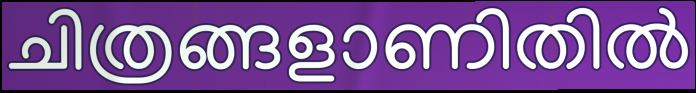
ചിത്രങ്ങളാണിതിൽ